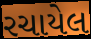
રચાયેલ